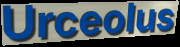
Urceolus